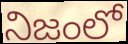
నిజంలో